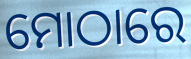
ମୋଠାରେ